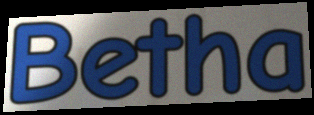
Betha